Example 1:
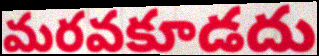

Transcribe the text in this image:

మరవకూడదు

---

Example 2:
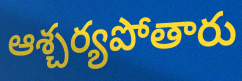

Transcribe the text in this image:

ఆశ్చర్యపోతారు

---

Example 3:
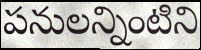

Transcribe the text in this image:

పనులన్నింటిని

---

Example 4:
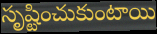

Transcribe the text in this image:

సృష్టించుకుంటాయి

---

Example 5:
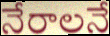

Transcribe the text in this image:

నేరాలనే